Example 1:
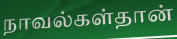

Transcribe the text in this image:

நாவல்கள்தான்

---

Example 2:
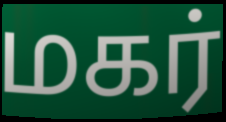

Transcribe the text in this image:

மகர்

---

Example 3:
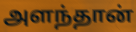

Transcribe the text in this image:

அளந்தான்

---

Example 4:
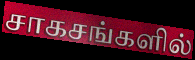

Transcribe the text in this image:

சாகசங்களில்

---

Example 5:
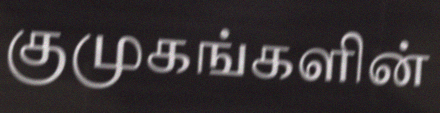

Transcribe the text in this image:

குமுகங்களின்